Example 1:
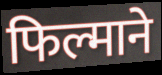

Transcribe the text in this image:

फिल्‍माने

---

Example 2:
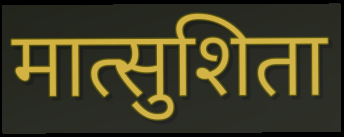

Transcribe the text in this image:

मात्सुशिता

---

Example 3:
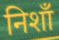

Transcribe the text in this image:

निशाँ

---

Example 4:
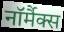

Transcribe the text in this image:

नॉर्मैक्स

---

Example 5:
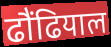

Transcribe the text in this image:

ढौंढियाल